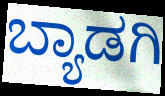
ಬ್ಯಾಡಗಿ